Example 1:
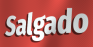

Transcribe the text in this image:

Salgado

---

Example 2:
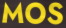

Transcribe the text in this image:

MOS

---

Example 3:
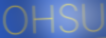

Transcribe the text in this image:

OHSU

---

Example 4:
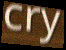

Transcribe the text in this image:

cry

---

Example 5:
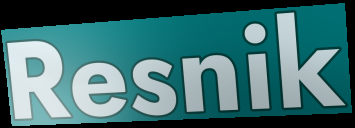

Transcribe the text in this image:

Resnik